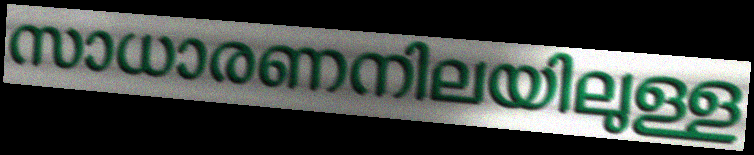
സാധാരണനിലയിലുള്ള